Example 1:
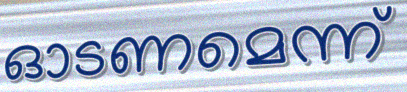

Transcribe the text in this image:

ഓടണമെന്ന്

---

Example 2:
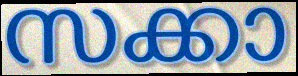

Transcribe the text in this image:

സക്കാ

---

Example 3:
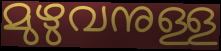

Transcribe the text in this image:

മുഴുവനുള്ള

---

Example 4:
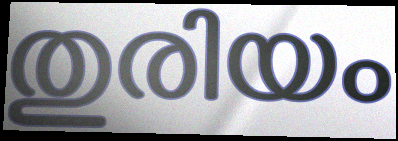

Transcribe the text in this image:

തുരിയം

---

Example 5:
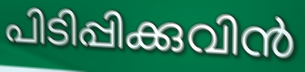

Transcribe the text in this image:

പിടിപ്പിക്കുവിൻ